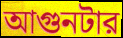
আগুনটার